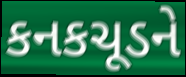
કનકચૂડને